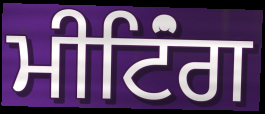
ਮੀਟਿਂੰਗ